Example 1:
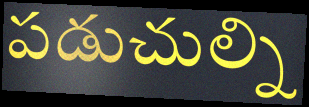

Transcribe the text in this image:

పడుచుల్ని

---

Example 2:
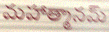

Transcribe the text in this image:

మహాత్మానమ్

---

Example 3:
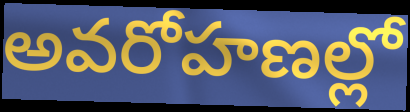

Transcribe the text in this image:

అవరోహణల్లో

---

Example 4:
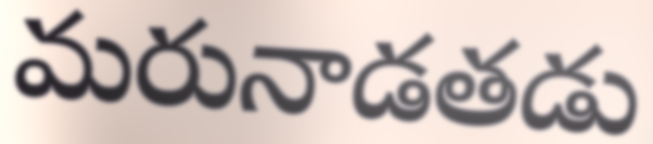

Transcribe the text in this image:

మరునాడతడు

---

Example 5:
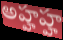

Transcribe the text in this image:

అహ్హహ్హ